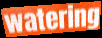
watering